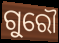
ଗୁରୌ